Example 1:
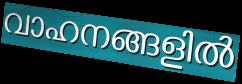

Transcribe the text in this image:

വാഹനങ്ങളിൽ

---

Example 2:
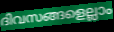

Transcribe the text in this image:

ദിവസങ്ങളെല്ലാം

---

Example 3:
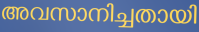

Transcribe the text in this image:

അവസാനിച്ചതായി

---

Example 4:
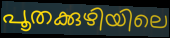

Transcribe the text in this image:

പൂതക്കുഴിയിലെ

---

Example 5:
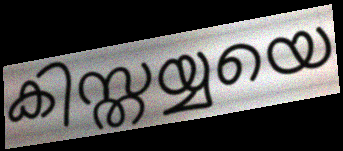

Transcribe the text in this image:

കിസ്തയ്യയെ